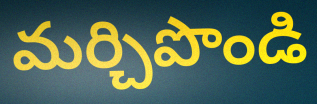
మర్చిపొండి